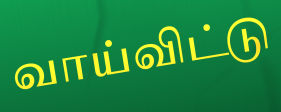
வாய்விட்டு